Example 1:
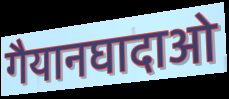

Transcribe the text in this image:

गैयानघादाओ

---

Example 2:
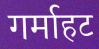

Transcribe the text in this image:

गर्माहट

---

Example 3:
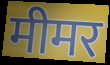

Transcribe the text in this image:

मीमर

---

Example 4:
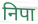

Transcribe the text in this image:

निपा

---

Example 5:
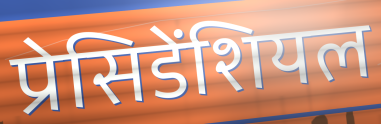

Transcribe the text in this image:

प्रेसिडेंशियल